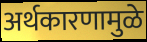
अर्थकारणामुळे